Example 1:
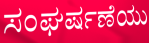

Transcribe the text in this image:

ಸಂಘರ್ಷಣೆಯು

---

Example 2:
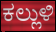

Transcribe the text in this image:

ಕಲ್ಲುಳಿ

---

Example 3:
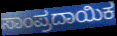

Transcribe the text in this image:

ಸಾಂಪ್ರದಾಯಿಕ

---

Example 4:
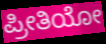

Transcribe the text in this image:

ಪ್ರೀತಿಯೋ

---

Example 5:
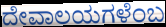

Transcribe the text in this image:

ದೇವಾಲಯಗಳೆಂಬ